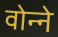
वोन्ने